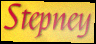
Stepney